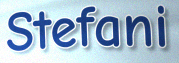
Stefani